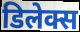
डिलेक्स